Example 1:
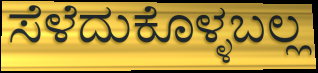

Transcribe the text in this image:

ಸೆಳೆದುಕೊಳ್ಳಬಲ್ಲ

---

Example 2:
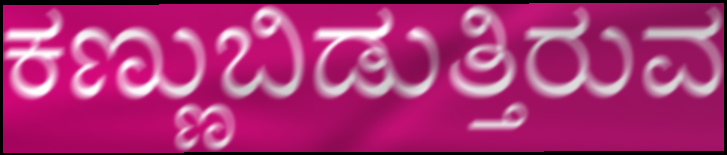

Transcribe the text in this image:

ಕಣ್ಣುಬಿಡುತ್ತಿರುವ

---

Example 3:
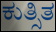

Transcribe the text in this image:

ಕುತ್ಸಿತ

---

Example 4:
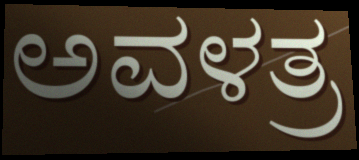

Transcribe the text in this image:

ಅವಳತ್ರ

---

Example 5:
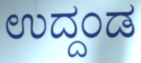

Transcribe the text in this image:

ಉದ್ದಂಡ